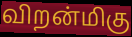
விறன்மிகு